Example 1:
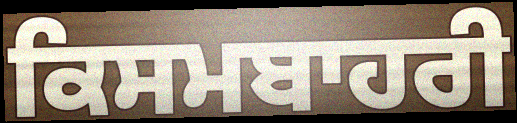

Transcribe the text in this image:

ਕਿਸਮਬਾਹਰੀ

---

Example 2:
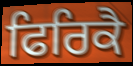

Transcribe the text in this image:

ਫਿਰਿਕੈ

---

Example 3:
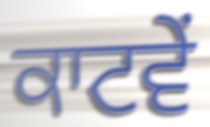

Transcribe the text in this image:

ਕਾਟਵੇਂ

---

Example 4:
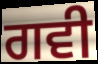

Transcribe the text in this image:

ਗਵੀ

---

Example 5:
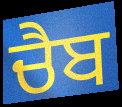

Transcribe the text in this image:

ਚੈਬ